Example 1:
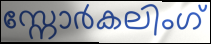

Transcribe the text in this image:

സ്നോർകലിംഗ്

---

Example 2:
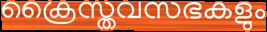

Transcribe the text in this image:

ക്രൈസ്തവസഭകളും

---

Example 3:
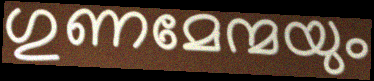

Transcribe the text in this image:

ഗുണമേന്മയും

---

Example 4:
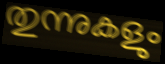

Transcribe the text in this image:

തുന്നുകളും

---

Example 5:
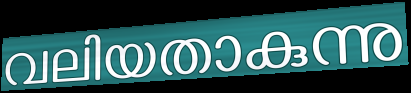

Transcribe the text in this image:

വലിയതാകുന്നു